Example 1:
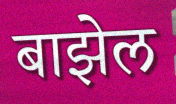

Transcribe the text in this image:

बाझेल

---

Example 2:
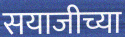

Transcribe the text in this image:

सयाजीच्या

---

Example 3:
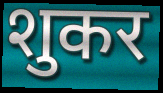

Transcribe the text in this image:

शुकर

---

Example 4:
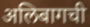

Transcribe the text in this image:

अलिबागची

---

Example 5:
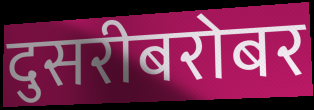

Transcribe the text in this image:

दुसरीबरोबर